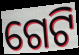
ଗେଟି